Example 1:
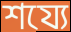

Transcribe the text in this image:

শয্যে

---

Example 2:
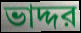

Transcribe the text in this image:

ভাদ্দর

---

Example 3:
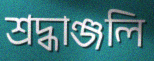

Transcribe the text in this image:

শ্রদ্ধাঞ্জলি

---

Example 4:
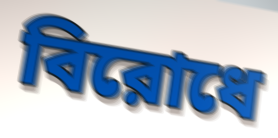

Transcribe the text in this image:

বিরোধে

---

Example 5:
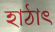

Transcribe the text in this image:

হাঠাৎ